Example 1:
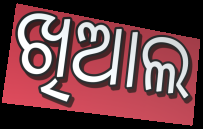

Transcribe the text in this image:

ଖିଆଲ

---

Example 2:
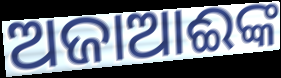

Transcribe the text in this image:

ଅଜାଆଈଙ୍କ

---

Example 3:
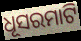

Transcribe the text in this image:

ଧୂସରମାଟି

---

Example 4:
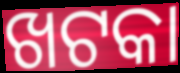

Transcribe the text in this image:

ଖଟକା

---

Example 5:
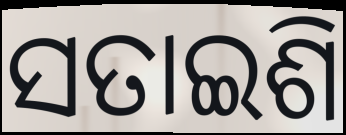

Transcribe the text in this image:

ସତାଇଶି